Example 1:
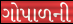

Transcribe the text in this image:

ગોપાળની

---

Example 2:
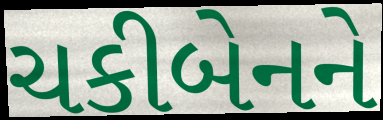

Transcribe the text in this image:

ચકીબેનને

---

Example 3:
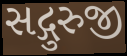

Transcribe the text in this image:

સદ્ગુરુજી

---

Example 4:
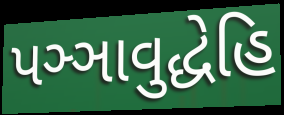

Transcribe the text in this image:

પઞ્ઞાવુદ્ધેહિ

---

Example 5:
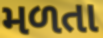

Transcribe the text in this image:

મળતા